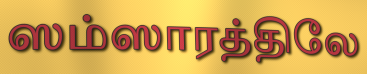
ஸம்ஸாரத்திலே